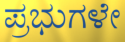
ಪ್ರಭುಗಳೇ